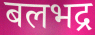
बलभद्र